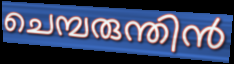
ചെമ്പരുന്തിൻ